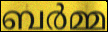
ബർമ്മ